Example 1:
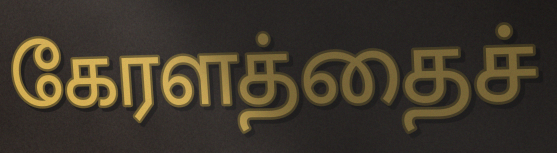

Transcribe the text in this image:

கேரளத்தைச்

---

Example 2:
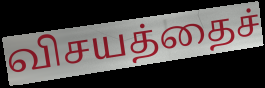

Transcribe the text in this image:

விசயத்தைச்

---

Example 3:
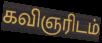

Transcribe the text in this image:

கவிஞரிடம்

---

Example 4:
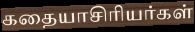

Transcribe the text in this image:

கதையாசிரியர்கள்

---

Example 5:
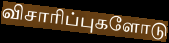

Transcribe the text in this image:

விசாரிப்புகளோடு